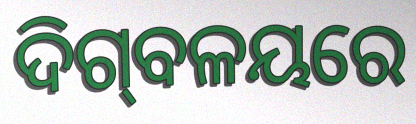
ଦିଗ୍‌ବଳୟରେ